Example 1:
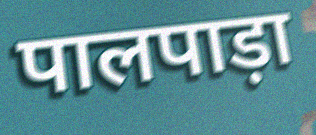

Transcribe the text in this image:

पालपाड़ा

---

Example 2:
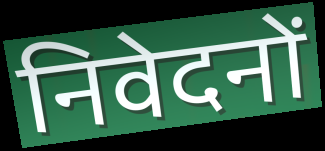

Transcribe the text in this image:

निवेदनों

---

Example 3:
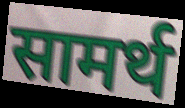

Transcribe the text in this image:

सामर्थ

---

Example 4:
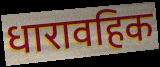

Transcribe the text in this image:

धारावहिक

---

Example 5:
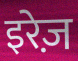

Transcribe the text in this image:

इरेज़